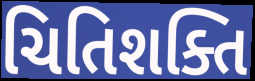
ચિતિશક્તિ